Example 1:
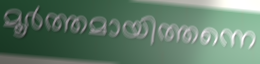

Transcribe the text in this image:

മൂർത്തമായിത്തന്നെ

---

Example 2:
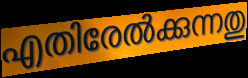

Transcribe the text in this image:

എതിരേൽക്കുന്നതു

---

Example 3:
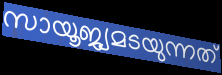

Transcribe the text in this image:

സായൂജ്യമടയുന്നത്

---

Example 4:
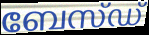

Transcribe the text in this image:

ബേസ്ഡ്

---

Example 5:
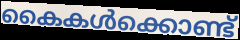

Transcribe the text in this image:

കൈകൾക്കൊണ്ട്